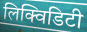
लिक्विडिटी